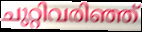
ചുറ്റിവരിഞ്ഞ്